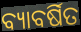
ବ୍ୟାବର୍ଷିତ